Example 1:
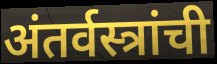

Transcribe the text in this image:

अंतर्वस्त्रांची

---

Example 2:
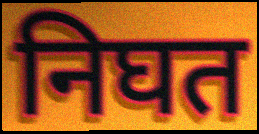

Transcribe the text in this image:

निघत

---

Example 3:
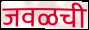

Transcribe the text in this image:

जवळची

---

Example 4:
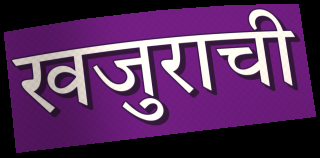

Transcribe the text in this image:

खजुराची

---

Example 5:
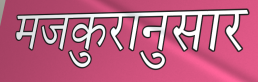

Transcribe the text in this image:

मजकुरानुसार